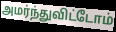
அமர்ந்துவிட்டோம்